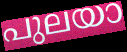
പുലയാ